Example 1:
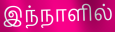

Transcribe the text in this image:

இந்நாளில்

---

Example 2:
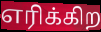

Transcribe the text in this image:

எரிக்கிற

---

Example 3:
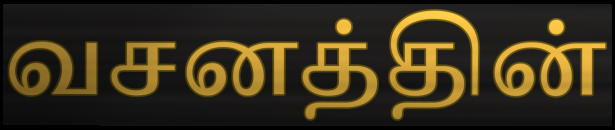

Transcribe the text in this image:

வசனத்தின்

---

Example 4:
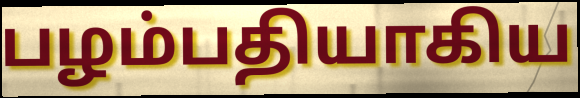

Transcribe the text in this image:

பழம்பதியாகிய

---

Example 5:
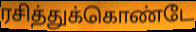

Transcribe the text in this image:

ரசித்துக்கொண்டே